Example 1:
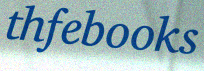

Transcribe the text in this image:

thfebooks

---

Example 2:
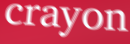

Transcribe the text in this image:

crayon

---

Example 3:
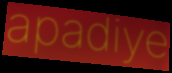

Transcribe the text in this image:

apadiye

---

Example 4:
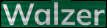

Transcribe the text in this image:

Walzer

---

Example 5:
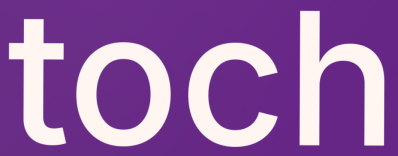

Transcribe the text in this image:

toch